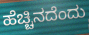
ಹೆಚ್ಚಿನದೆಂದು